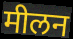
मीलन